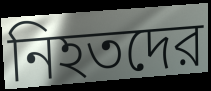
নিহতদের